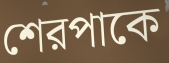
শেরপাকে